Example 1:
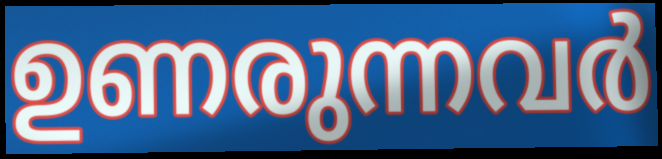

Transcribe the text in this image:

ഉണരുന്നവർ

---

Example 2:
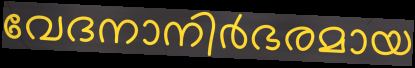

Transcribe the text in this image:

വേദനാനിർഭരമായ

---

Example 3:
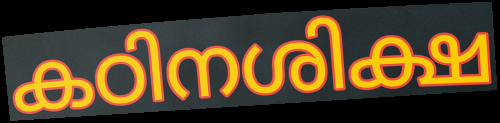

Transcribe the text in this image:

കഠിനശിക്ഷ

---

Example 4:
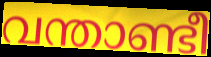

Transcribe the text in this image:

വന്താണ്ടീ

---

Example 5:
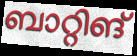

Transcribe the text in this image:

ബാറ്റിങ്